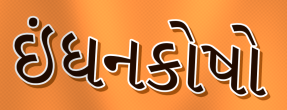
ઇંધનકોષો